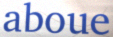
aboue